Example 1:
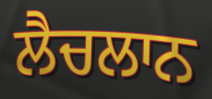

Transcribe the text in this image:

ਲੈਚਲਾਨ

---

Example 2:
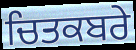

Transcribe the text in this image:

ਚਿਤਕਬਰੇ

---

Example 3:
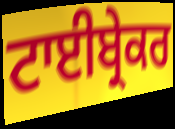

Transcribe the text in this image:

ਟਾਈਬ੍ਰੇਕਰ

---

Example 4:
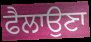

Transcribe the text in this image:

ਫੈਲਾਉਣਾ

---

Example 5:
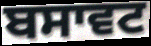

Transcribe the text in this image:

ਬਸਾਵਟ